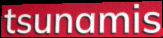
tsunamis